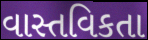
વાસ્તવિકતા